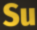
Su